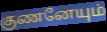
குணனேயும்